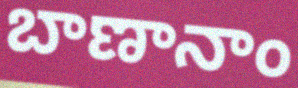
బాణానాం